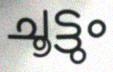
ചൂട്ടും